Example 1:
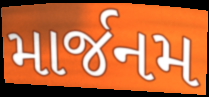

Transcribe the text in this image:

માર્જનમ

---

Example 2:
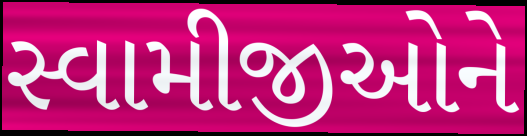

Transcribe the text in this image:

સ્વામીજીઓને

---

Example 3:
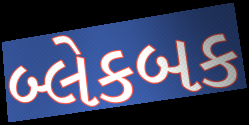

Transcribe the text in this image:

બ્લેકબક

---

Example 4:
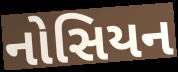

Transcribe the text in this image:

નોસિયન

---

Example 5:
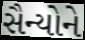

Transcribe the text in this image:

સૈન્યોને